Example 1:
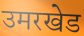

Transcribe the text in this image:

उमरखेड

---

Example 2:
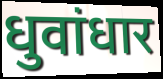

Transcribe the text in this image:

धुवांधार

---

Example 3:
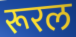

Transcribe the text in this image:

रूरल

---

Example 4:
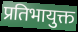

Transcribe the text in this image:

प्रतिभायुक्त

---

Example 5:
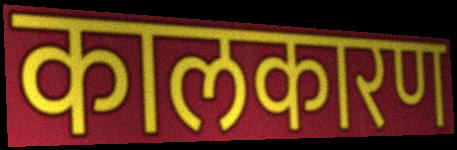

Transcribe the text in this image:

कालकारण